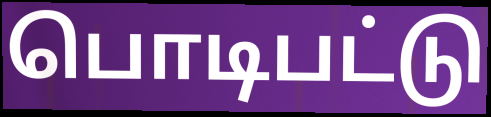
பொடிபட்டு